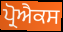
ਪ੍ਰੋਐਕਸ